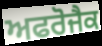
ਅਫਰੋਜੈਕ